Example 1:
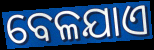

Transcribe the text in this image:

ବେଳଯାଏ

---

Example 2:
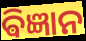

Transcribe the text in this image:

ଵିଜ୍ଞାନ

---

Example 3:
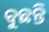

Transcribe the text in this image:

ବୁଛନ୍ତି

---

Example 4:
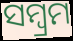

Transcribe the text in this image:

ସମ୍ବ୍ରମ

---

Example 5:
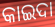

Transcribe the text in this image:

କାଇଦା